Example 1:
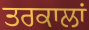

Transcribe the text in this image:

ਤਰਕਾਲਾਂ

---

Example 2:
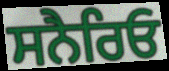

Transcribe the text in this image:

ਸਨੈਰਿਓ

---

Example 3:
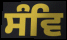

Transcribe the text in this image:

ਸੰਵਿ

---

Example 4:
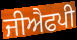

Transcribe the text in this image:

ਜੀਐਫਪੀ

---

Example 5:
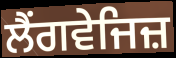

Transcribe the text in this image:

ਲੈਂਗਵੇਜਿਜ਼